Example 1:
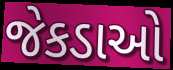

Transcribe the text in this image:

જેકડાઓ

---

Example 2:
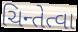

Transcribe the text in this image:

ચિન્તેત્વા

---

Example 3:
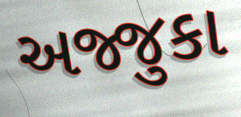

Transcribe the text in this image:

અજ્જુકા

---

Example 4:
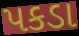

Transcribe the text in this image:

પકડા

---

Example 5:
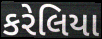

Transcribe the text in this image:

કરેલિયા